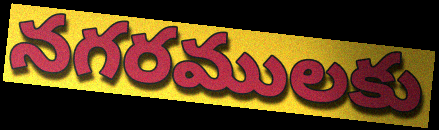
నగరములకు